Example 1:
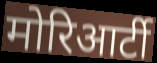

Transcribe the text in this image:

मोरिआर्टी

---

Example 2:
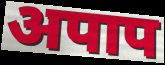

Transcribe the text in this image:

अपाप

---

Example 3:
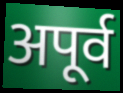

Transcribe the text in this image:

अपूर्व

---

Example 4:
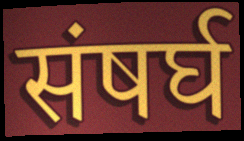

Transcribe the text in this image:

संषर्घ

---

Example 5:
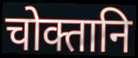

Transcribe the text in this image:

चोक्तानि